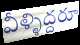
వీళ్ళిద్దరూ